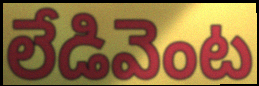
లేడివెంట